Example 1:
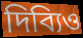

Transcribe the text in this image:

দিব্যিও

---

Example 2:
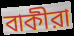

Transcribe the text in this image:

বাকীরা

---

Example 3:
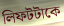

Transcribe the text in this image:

লিফটটাকে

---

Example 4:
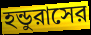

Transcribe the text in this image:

হন্ডুরাসের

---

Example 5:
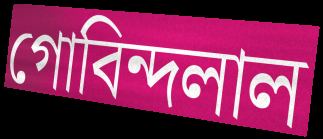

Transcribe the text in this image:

গোবিন্দলাল